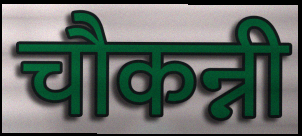
चौकन्नी